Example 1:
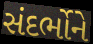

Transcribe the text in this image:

સંદર્ભોને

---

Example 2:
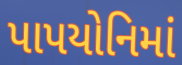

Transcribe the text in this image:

પાપયોનિમાં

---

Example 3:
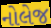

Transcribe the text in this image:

નોલેજ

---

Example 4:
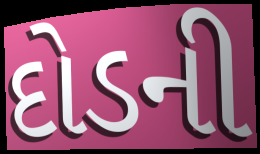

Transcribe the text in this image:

દોડની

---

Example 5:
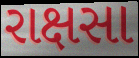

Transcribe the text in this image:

રાક્ષસા